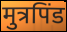
मुत्रपिंड